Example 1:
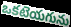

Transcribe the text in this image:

ఒకటెయగును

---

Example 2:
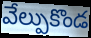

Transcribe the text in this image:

వేల్పుకొండ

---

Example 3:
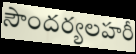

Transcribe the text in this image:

సౌందర్యలహరీ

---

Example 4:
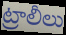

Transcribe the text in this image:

ట్రాలీలు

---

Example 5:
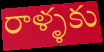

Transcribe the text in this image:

రాళ్ళకు